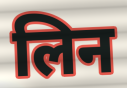
लिन